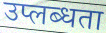
उप्लब्धता